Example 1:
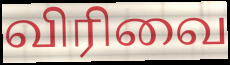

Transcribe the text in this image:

விரிவை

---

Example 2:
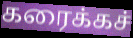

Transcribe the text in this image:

கரைக்கச்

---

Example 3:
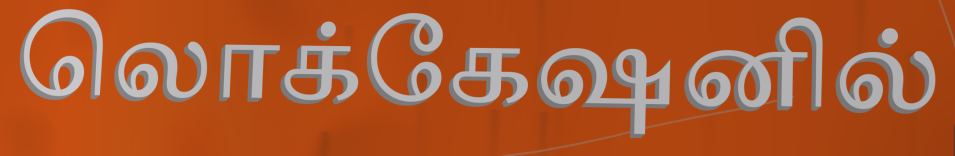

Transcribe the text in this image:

லொக்கேஷனில்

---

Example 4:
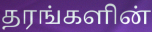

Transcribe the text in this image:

தரங்களின்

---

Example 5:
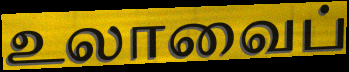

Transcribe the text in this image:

உலாவைப்